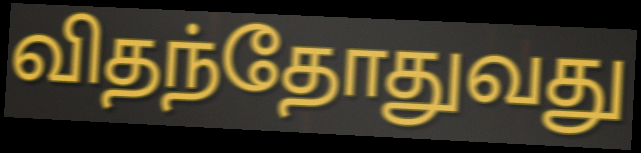
விதந்தோதுவது